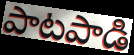
పాటపాడి